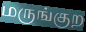
மருங்குற